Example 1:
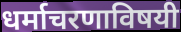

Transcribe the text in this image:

धर्माचरणाविषयी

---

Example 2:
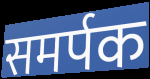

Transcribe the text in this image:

समर्पक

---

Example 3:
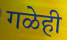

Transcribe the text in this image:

गळेही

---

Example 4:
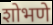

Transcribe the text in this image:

शोभणे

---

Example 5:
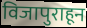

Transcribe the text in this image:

विजापुराहून